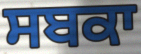
ਸਬਕਾ